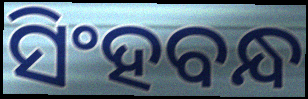
ସିଂହବନ୍ଧ